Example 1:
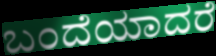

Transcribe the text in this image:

ಬಂದೆಯಾದರೆ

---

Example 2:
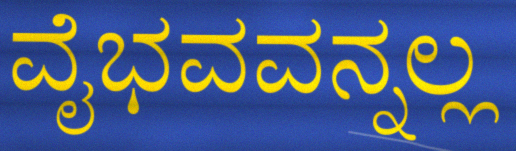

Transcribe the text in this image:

ವೈಭವವನ್ನಲ್ಲ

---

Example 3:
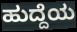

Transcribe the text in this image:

ಹುದ್ದೆಯ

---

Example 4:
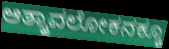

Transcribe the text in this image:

ಆತ್ಮಾವಲೋಕನಕ್ಕೂ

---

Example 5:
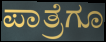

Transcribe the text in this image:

ಪಾತ್ರೆಗೂ